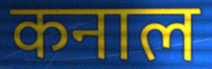
कनाल